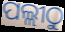
ପଲ୍ଲୀଠୁ